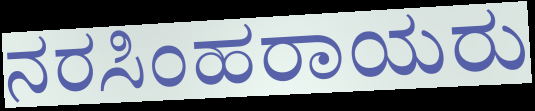
ನರಸಿಂಹರಾಯರು